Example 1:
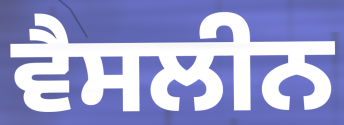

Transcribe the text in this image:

ਵੈਸਲੀਨ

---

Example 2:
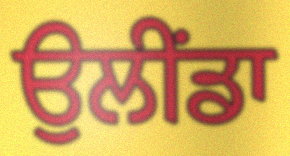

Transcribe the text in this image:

ਉਲੀਂਡਾ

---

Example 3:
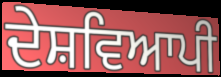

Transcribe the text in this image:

ਦੇਸ਼ਵਿਆਪੀ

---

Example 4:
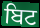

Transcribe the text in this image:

ਬਿਟ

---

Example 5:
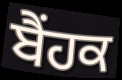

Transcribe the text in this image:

ਬੈਂਹਕ